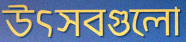
উৎসবগুলো